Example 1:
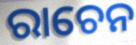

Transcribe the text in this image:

ରାଚେନ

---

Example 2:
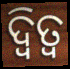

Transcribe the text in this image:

ଦ୍ୱିତ୍ୱ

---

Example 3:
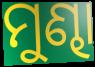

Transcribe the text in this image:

ମୁଣ୍ଢା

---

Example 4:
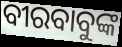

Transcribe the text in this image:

ବୀରବାବୁଙ୍କ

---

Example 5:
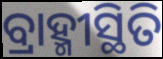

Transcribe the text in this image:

ବ୍ରାହ୍ମୀସ୍ଥିତି